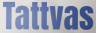
Tattvas